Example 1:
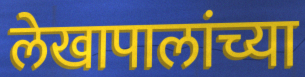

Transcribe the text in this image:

लेखापालांच्या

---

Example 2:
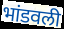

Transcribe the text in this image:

भांडवली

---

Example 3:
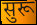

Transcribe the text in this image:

सुरू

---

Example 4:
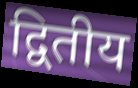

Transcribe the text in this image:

द्वितीय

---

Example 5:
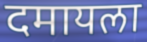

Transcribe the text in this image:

दमायला